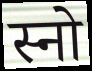
स्नो